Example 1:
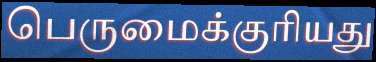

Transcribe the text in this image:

பெருமைக்குரியது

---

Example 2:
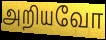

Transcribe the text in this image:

அறியவோ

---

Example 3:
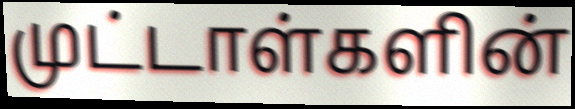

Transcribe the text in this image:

முட்டாள்களின்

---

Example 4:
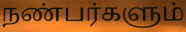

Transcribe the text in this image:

நண்பர்களும்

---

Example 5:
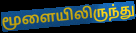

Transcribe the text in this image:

மூளையிலிருந்து